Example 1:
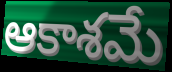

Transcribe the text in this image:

ఆకాశమే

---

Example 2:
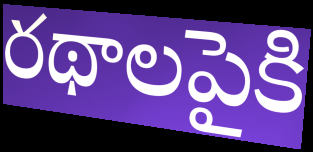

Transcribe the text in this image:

రథాలపైకి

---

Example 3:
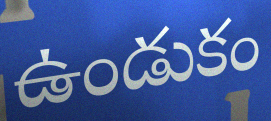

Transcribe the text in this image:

ఉండుకం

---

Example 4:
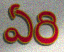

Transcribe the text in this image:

ఏరి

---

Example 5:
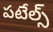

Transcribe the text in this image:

పటేల్స్